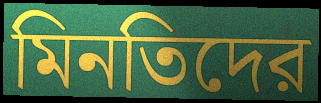
মিনতিদের